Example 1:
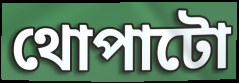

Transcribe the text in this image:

থোপাটো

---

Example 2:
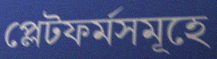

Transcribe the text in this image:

প্লেটফৰ্মসমূহে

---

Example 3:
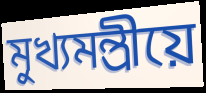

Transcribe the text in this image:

মুখ্যমন্ত্ৰীয়ে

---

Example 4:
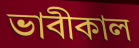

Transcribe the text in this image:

ভাবীকাল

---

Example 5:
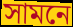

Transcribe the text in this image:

সামনে